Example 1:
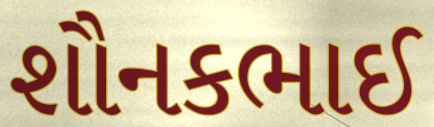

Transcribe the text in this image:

શૌનકભાઈ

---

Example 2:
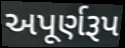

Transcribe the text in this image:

અપૂર્ણરૂપ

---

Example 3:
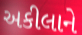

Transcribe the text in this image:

અકીલાને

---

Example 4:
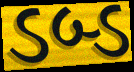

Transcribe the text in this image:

ડબ્ડ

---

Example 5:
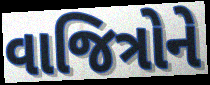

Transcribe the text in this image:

વાજિત્રોને